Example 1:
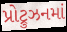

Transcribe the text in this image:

પ્રોટ્રુઝનમાં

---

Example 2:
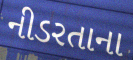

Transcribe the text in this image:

નીડરતાના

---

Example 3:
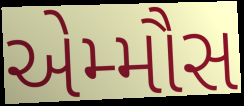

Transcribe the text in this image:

એમ્મૌસ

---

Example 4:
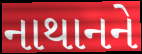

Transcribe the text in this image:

નાથાનને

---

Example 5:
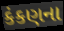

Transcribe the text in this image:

કંકણના